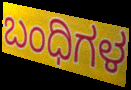
ಬಂಧಿಗಳ